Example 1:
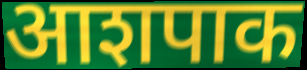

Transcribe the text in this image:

आशपाक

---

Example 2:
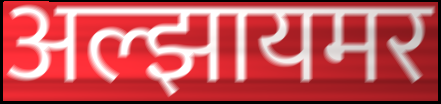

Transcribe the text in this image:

अल्झायमर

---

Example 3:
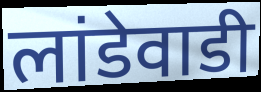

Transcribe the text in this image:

लांडेवाडी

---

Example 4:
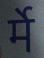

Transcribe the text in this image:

र्मे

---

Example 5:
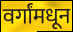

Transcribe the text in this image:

वर्गांमधून